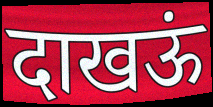
दाखऊं